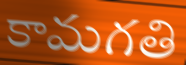
కామగతి